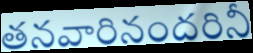
తనవారినందరినీ